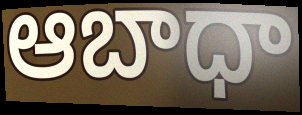
ఆబాధా